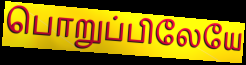
பொறுப்பிலேயே